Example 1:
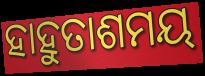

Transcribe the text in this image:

ହାହୁତାଶମୟ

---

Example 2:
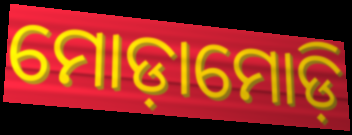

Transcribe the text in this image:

ମୋଡ଼ାମୋଡ଼ି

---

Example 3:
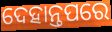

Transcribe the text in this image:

ଦେହାନ୍ତପରେ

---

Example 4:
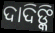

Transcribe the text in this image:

ଦାଦିଙ୍କି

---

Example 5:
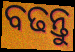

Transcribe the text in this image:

ବଢନ୍ତୁ